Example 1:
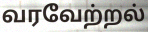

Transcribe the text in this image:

வரவேற்றல்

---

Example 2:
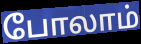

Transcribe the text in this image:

போலாம்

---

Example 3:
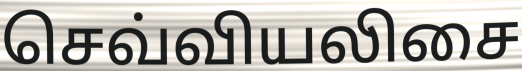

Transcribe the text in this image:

செவ்வியலிசை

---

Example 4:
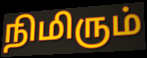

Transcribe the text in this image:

நிமிரும்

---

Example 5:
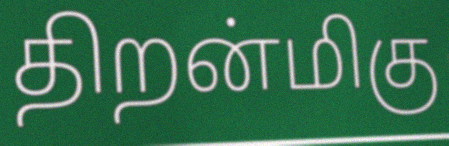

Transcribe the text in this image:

திறன்மிகு